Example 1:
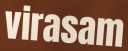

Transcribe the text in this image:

virasam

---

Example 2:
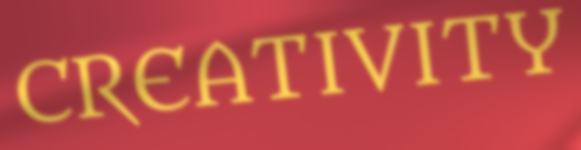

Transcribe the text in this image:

CREATIVITY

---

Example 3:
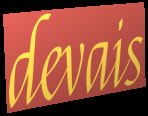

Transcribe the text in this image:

devais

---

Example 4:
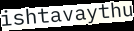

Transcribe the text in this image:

ishtavaythu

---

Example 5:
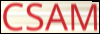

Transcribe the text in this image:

CSAM